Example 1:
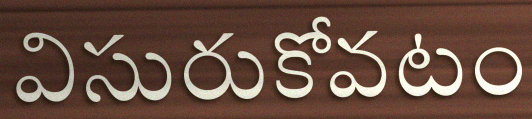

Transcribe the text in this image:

విసురుకోవటం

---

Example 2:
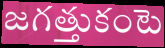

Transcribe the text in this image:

జగత్తుకంటె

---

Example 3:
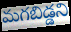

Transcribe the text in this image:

మగబిడ్డని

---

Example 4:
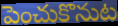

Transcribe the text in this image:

పెంచుకొనుట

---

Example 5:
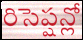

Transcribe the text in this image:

రిసెప్షన్లో